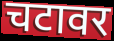
चटावर